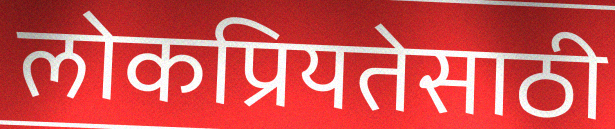
लोकप्रियतेसाठी